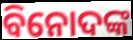
ବିନୋଦଙ୍କ